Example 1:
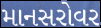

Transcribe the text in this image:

માનસરોવર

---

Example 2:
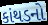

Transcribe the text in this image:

કાંથડનો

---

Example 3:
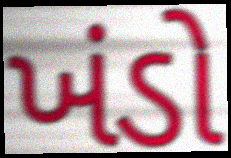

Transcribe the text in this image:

ખંડો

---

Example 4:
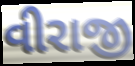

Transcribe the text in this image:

વીરાજી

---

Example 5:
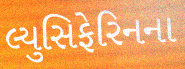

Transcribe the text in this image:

લ્યુસિફેરિનના